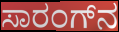
ಸಾರಂಗ್‌ನ